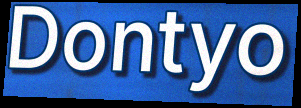
Dontyo